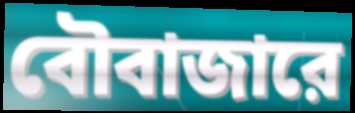
বৌবাজারে